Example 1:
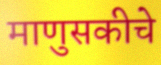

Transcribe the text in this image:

माणुसकीचे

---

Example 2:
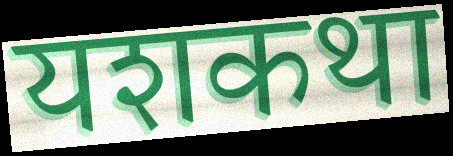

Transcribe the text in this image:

यशकथा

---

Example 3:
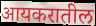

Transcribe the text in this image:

आयकरातील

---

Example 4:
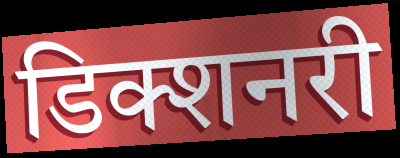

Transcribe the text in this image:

डिक्शनरी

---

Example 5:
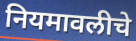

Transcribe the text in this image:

नियमावलीचे